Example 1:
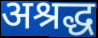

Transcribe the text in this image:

अश्रद्ध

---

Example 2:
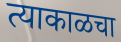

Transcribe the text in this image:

त्याकाळचा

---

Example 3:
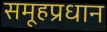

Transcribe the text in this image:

समूहप्रधान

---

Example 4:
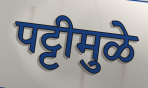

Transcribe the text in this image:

पट्टीमुळे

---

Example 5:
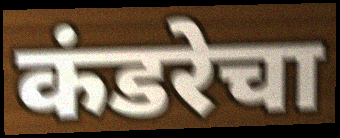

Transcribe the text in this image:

कंडरेचा